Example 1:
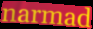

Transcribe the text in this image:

narmad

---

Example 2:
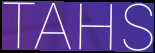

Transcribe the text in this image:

TAHS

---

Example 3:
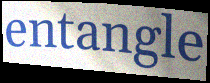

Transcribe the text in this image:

entangle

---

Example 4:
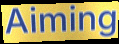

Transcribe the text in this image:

Aiming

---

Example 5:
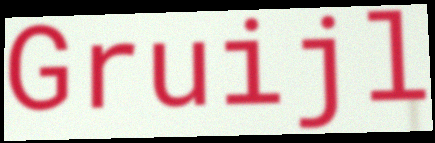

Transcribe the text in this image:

Gruijl